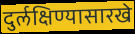
दुर्लक्षिण्यासारखे